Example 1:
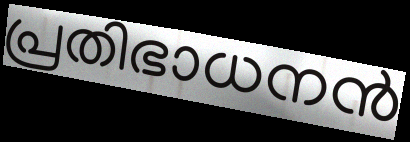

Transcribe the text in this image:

പ്രതിഭാധനൻ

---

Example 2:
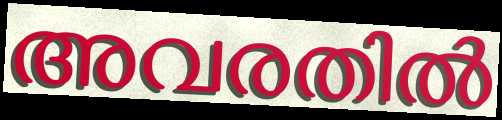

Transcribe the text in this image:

അവരതിൽ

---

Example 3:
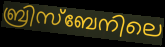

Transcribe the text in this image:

ബ്രിസ്ബേനിലെ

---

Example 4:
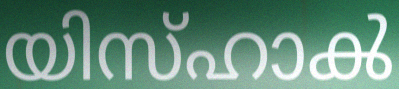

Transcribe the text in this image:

യിസ്ഹാൿ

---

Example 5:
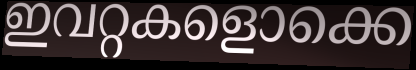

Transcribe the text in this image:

ഇവറ്റകളൊക്കെ